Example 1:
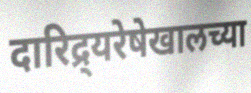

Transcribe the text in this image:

दारिद्र्यरेषेखालच्या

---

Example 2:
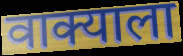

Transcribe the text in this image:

वाक्‍याला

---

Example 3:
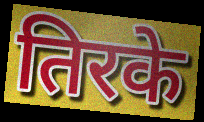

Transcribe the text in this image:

तिरके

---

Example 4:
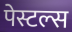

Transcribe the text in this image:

पेस्टल्स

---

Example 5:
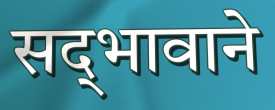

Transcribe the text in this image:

सद्‌भावाने